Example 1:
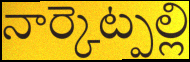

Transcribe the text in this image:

నార్కెట్పల్లి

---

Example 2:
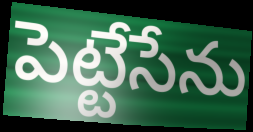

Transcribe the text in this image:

పెట్టేసేను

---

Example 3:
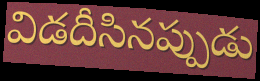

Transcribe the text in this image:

విడదీసినప్పుడు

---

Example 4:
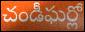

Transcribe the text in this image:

చండీఘర్లో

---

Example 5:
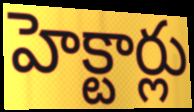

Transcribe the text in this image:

హెక్టార్లు